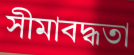
সীমাবদ্ধতা